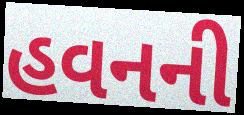
હવનની